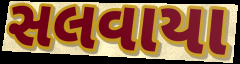
સલવાયા